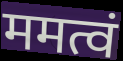
ममत्वं